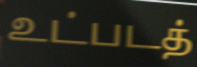
உட்படத்